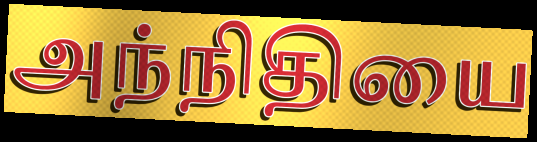
அந்நிதியை